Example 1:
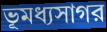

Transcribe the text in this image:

ভূমধ্যসাগর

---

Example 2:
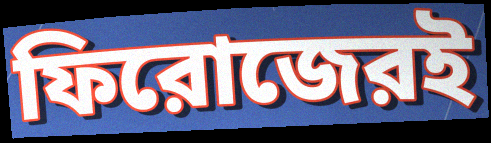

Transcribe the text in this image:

ফিরোজেরই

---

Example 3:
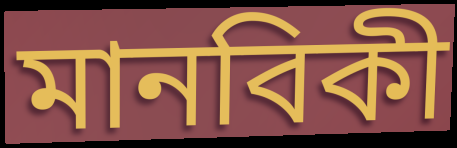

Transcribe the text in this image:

মানবিকী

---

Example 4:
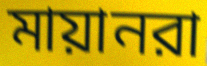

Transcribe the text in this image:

মায়ানরা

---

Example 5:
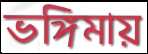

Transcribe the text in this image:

ভঙ্গিমায়